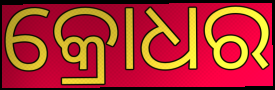
କ୍ରୋଧର